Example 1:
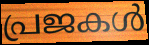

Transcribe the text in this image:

പ്രജകൾ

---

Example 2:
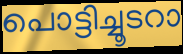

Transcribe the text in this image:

പൊട്ടിച്ചൂടറാ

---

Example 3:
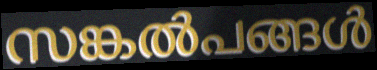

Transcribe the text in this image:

സങ്കൽപങ്ങൾ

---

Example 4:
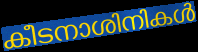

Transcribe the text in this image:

കീടനാശിനികൾ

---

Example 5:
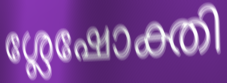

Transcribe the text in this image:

ശ്ലേഷോക്തി